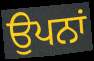
ਉਪਨਾਂ